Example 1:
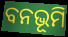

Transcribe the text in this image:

ବନଭୂମି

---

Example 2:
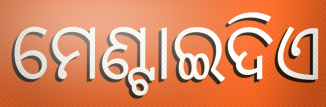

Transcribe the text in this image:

ମେଣ୍ଟାଇଦିଏ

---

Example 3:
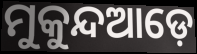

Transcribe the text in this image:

ମୁକୁନ୍ଦଆଡ଼େ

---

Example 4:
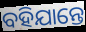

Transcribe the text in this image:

ବହିଯାନ୍ତେ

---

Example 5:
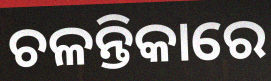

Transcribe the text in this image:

ଚଳନ୍ତିକାରେ